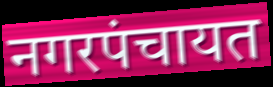
नगरपंचायत